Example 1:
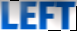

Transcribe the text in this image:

LEFT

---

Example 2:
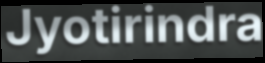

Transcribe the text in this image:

Jyotirindra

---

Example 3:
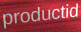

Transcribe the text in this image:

productid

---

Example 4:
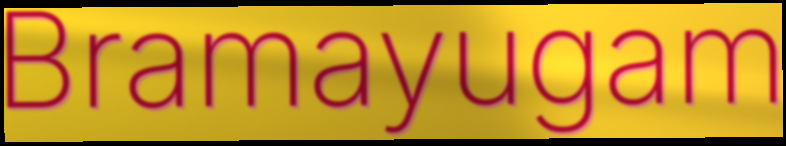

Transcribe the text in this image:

Bramayugam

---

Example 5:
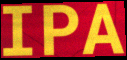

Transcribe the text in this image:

IPA